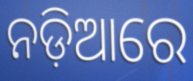
ନଡ଼ିଆରେ